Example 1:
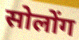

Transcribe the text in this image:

सोलोंग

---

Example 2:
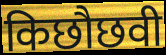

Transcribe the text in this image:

किछौछवी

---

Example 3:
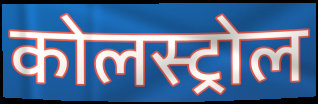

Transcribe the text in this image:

कोलस्ट्रोल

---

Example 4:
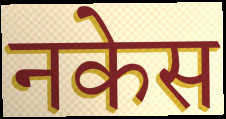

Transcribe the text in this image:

नकेस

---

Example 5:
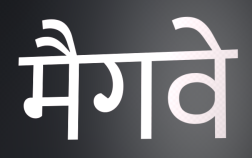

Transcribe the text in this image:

मैगवे